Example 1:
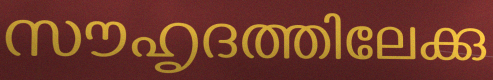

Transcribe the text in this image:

സൗഹൃദത്തിലേക്കു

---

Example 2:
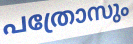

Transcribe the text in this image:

പത്രോസും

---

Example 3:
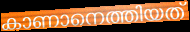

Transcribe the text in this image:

കാണാനെത്തിയത്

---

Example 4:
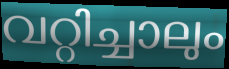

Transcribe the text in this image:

വറ്റിച്ചാലും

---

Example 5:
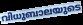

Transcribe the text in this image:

വിധുബാലയുടെ